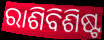
ରାଶିବିଶିଷ୍ଟ